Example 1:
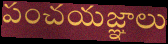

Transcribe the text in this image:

పంచయజ్ఞాలు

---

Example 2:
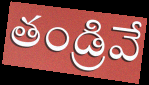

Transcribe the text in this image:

తండ్రివే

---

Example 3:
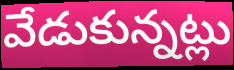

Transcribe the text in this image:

వేడుకున్నట్లు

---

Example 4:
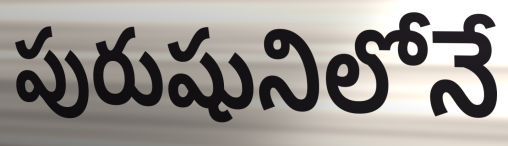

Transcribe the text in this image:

పురుషునిలోనే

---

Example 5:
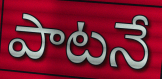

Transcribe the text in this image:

పాటనే